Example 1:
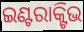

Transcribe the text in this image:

ଇଣ୍ଟରାକ୍ଟିଭ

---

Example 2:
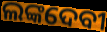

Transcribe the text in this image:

ଲଙ୍କଦେବୀ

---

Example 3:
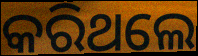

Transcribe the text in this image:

କରିଥଲେ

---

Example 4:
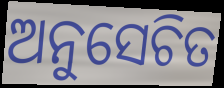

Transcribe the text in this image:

ଅନୁସେଚିତ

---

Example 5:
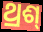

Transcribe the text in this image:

ଥ୍ରଶ୍